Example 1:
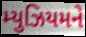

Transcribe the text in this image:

મ્યુઝિયમને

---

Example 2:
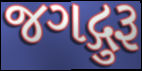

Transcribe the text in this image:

જગદ્ગુરૂ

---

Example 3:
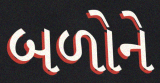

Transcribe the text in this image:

બળોને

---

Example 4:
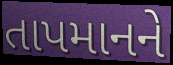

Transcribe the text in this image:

તાપમાનને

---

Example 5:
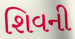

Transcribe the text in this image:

શિવની